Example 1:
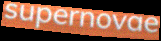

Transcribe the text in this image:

supernovae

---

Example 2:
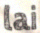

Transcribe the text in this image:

lai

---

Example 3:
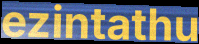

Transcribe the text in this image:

ezintathu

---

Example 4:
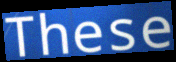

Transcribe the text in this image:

These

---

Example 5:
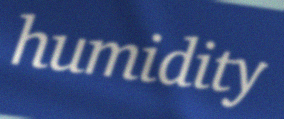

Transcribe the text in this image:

humidity